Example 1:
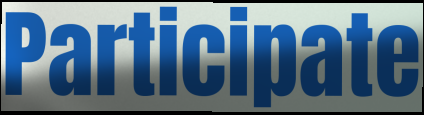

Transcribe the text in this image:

Participate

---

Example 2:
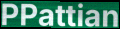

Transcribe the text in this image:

PPattian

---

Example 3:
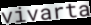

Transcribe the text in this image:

vivarta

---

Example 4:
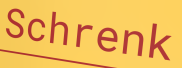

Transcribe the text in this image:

Schrenk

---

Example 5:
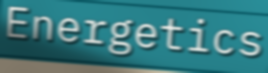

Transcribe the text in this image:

Energetics